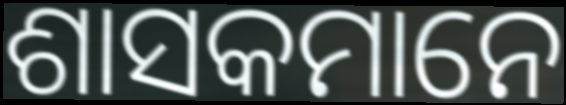
ଶାସକମାନେ